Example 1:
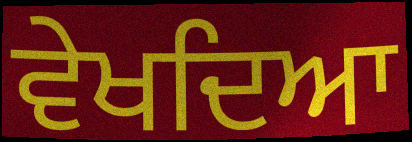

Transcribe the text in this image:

ਵੇਖਦਿਆ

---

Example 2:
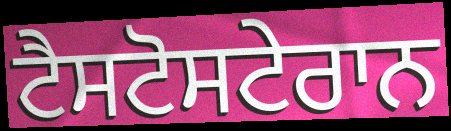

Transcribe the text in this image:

ਟੈਸਟੋਸਟੇਰਾਨ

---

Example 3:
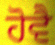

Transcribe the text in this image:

ਹੋਵੈ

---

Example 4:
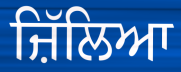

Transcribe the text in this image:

ਜ਼ਿੱਲਿਆ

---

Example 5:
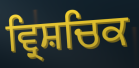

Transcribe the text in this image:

ਵ੍ਰਿਸ਼ਚਿਕ